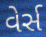
વેર્સ